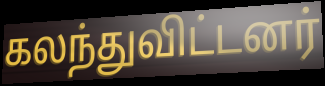
கலந்துவிட்டனர்